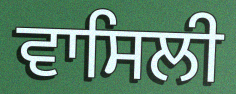
ਵਾਸਿਲੀ